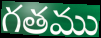
గతము